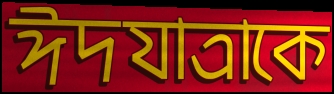
ঈদযাত্রাকে